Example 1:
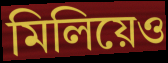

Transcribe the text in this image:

মিলিয়েও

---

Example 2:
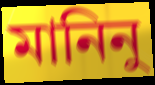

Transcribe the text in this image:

মানিনু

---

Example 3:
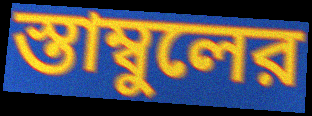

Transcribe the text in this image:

স্তাম্বুলের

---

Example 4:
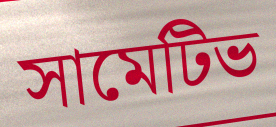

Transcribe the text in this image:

সামেটিভ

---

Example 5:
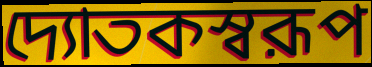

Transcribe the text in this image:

দ্যোতকস্বরূপ